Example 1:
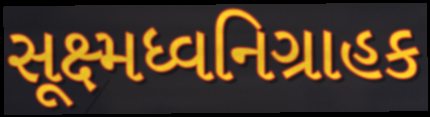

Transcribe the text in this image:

સૂક્ષ્મધ્વનિગ્રાહક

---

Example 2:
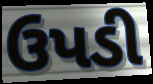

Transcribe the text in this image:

ઉપડી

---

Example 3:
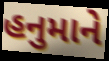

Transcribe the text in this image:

હનુમાને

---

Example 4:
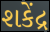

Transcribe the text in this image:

શકેંદ્ર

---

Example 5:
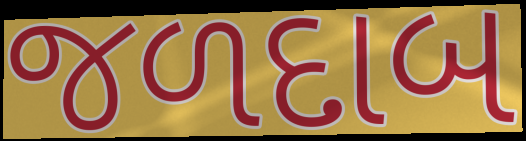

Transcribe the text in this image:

જળદાબ